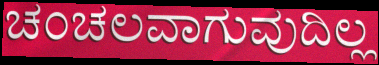
ಚಂಚಲವಾಗುವುದಿಲ್ಲ